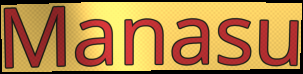
Manasu